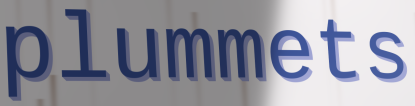
plummets